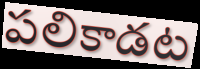
పలికాడట